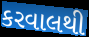
કરવાલથી